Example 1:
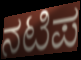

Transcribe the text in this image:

ನಟಿಪ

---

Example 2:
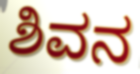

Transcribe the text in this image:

ಶಿವನ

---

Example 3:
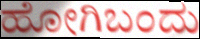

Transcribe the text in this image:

ಹೋಗಿಬಂದು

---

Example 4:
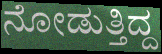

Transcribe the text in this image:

ನೋಡುತ್ತಿದ್ದ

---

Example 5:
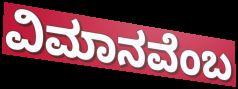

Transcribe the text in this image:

ವಿಮಾನವೆಂಬ